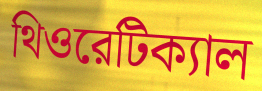
থিওরেটিক্যাল